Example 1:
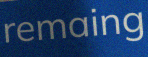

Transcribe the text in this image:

remaing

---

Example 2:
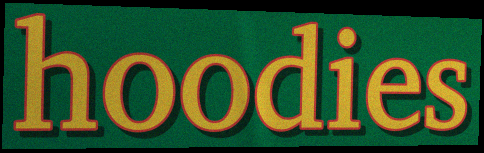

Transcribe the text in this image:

hoodies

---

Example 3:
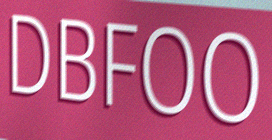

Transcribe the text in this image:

DBFOO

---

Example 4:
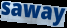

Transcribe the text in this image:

saway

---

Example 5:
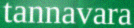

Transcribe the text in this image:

tannavara